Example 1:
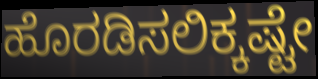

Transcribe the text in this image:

ಹೊರಡಿಸಲಿಕ್ಕಷ್ಟೇ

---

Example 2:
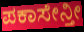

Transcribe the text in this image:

ಪಕಾಸೇನ್ತೀ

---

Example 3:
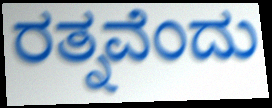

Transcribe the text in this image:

ರತ್ನವೆಂದು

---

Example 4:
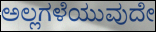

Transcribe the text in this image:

ಅಲ್ಲಗಳೆಯುವುದೇ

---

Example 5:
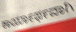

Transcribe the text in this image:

ಕಾರ್ಯಾರ್ಥವಾಗಿ